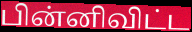
பின்னிவிட்ட